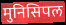
मुनिसिपल